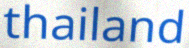
thailand